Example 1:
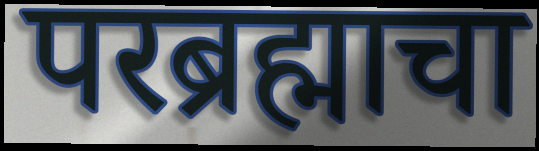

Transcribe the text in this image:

परब्रह्माचा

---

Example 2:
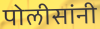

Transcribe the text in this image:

पोलीसांनी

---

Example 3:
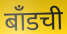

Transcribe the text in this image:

बाँडची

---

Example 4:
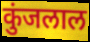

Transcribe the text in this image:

कुंजलाल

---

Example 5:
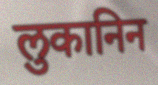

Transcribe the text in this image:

लुकानिन